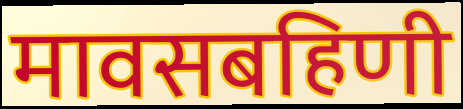
मावसबहिणी